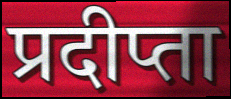
प्रदीप्ता